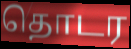
தொடர